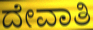
ದೇವಾತಿ